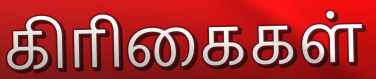
கிரிகைகள்